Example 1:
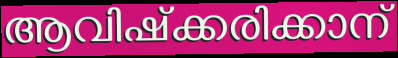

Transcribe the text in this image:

ആവിഷ്ക്കരിക്കാന്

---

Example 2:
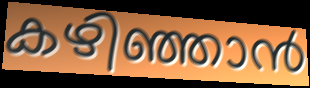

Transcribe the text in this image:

കഴിഞ്ഞാൻ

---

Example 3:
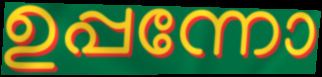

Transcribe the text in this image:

ഉപ്പന്നോ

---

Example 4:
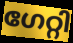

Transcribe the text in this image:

ഗേറ്റി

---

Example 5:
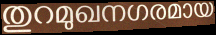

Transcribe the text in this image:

തുറമുഖനഗരമായ